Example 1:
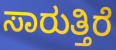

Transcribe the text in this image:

ಸಾರುತ್ತಿರೆ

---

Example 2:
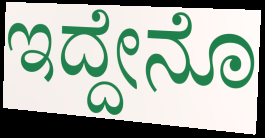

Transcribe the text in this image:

ಇದ್ದೇನೊ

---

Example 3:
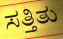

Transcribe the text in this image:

ಸತ್ತಿತು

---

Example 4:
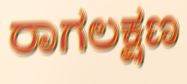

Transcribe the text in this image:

ರಾಗಲಕ್ಷಣ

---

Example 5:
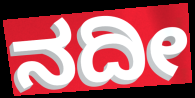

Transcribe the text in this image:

ನದೀ